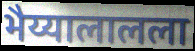
भैय्यालालला